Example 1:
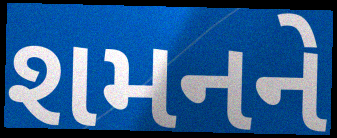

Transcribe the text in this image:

શમનને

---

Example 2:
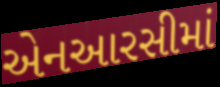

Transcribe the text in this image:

એનઆરસીમાં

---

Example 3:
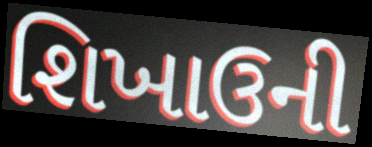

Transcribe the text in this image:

શિખાઉની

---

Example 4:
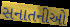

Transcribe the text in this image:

સનાતનીઓ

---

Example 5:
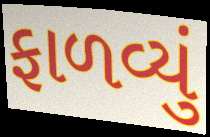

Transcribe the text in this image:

ફાળવ્યું